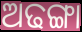
ଅଢଙ୍ଗା